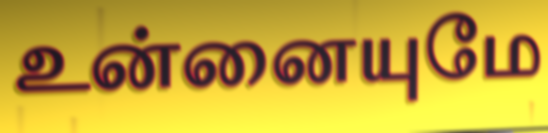
உன்னையுமே